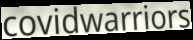
covidwarriors